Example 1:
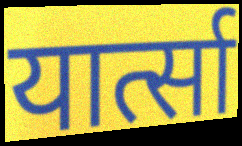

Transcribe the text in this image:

यार्त्सा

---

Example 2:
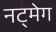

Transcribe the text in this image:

नट्मेग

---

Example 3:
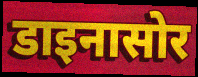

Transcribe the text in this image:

डाइनासोर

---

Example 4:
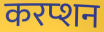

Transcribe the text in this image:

करप्‍शन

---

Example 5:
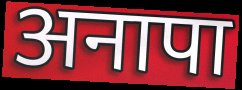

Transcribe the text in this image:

अनापा